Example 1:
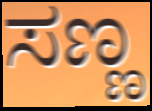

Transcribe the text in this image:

ಸಣ್ಣ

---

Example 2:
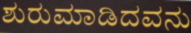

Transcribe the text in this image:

ಶುರುಮಾಡಿದವನು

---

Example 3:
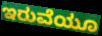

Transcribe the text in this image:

ಇರುವೆಯೂ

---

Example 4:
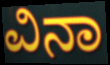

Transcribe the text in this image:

ವಿನಾ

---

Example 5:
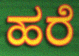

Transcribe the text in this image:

ಹರೆ